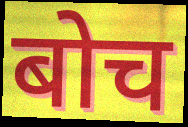
बोच